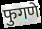
फुगणे